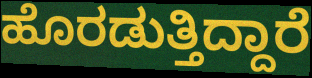
ಹೊರಡುತ್ತಿದ್ದಾರೆ